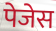
पेजेस